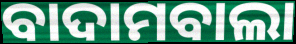
ବାଦାମବାଲା